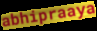
abhipraaya